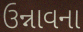
ઉન્નાવના